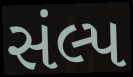
સંલ્પ